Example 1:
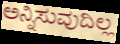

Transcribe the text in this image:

ಅನ್ನಿಸುವುದಿಲ್ಲ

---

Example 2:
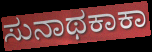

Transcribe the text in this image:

ಸುನಾಥಕಾಕಾ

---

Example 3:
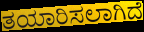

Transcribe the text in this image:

ತಯಾರಿಸಲಾಗಿದೆ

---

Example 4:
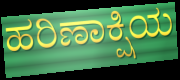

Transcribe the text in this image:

ಹರಿಣಾಕ್ಷಿಯ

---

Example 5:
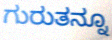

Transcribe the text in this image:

ಗುರುತನ್ನೂ